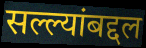
सल्ल्यांबद्दल